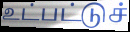
உட்பட்டுச்